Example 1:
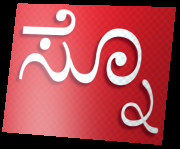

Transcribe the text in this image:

ಸ್ನೊ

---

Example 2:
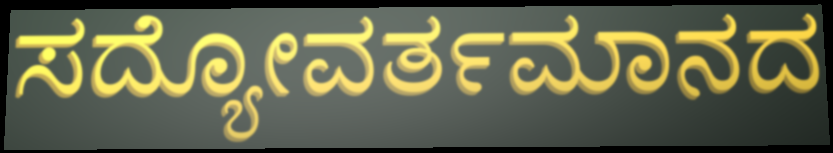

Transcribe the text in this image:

ಸದ್ಯೋವರ್ತಮಾನದ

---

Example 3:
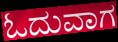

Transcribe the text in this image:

ಓದುವಾಗ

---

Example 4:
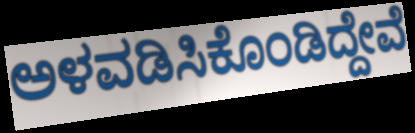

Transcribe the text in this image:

ಅಳವಡಿಸಿಕೊಂಡಿದ್ದೇವೆ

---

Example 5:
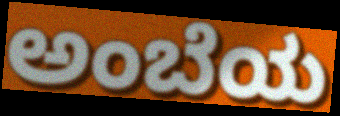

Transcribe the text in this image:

ಅಂಬೆಯ